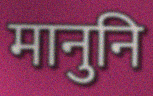
मानुनि